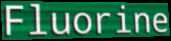
Fluorine